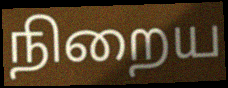
நிறைய